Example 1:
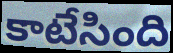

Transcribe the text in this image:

కాటేసింది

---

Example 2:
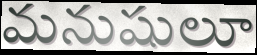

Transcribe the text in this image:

మనుషులూ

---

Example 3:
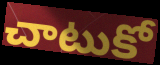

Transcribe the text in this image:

చాటుకో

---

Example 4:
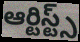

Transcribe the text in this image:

ఆర్టిస్ట్స్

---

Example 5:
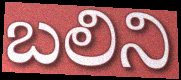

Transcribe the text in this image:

బలిని